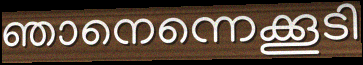
ഞാനെന്നെക്കൂടി